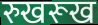
रुखरूख